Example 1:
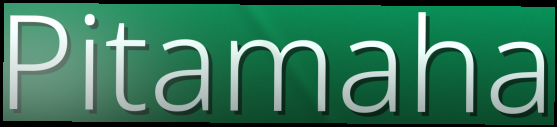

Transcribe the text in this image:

Pitamaha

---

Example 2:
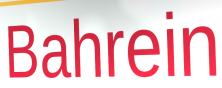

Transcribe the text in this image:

Bahrein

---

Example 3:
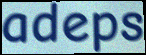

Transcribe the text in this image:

adeps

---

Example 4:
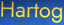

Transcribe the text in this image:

Hartog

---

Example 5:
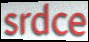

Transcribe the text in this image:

srdce